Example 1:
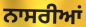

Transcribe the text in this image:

ਨਾਸਰੀਆਂ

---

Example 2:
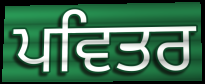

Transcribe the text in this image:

ਪਵਿਤਰ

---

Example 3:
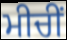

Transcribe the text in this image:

ਮੀਚੀਂ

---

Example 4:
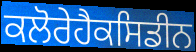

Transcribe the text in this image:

ਕਲੋਰੇਹੈਕਸਿਡੀਨ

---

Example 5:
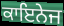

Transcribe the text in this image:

ਕਾਇਨੇਜ